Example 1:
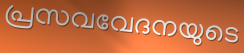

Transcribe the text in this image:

പ്രസവവേദനയുടെ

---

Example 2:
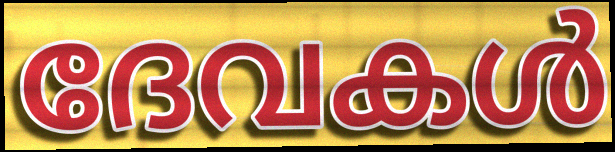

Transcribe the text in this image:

ദേവകൾ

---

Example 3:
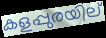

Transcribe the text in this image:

കളപ്പുരയില്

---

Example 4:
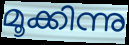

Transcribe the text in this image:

മൂക്കിന്നു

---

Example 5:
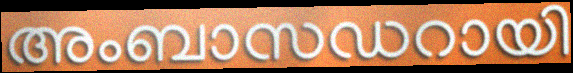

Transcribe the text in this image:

അംബാസഡറായി